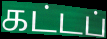
கட்டப்